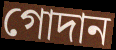
গোদান